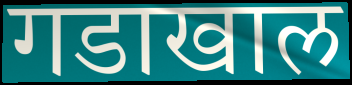
गडाखाल